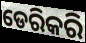
ଡେରିକରି